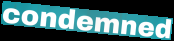
condemned